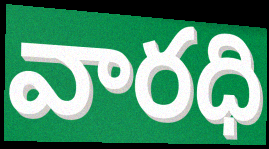
వారధి